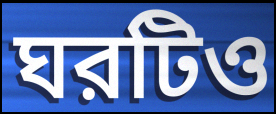
ঘরটিও